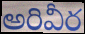
అరివీర